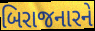
બિરાજનારને